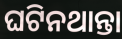
ଘଟିନଥାନ୍ତା